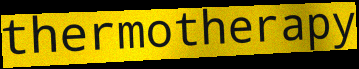
thermotherapy